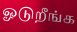
ஓடுறீங்க